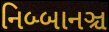
નિબ્બાનઞ્ચ